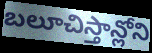
బలూచిస్తాన్లోని